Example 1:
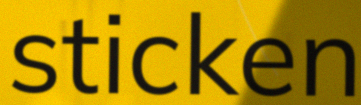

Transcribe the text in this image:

sticken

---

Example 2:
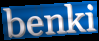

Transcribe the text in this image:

benki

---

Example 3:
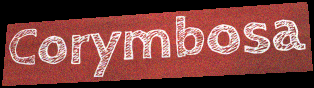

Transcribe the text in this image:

Corymbosa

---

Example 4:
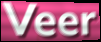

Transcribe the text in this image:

Veer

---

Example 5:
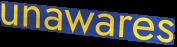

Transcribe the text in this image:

unawares